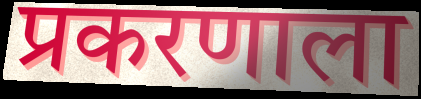
प्रकरणाला